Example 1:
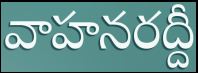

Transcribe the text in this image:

వాహనరద్దీ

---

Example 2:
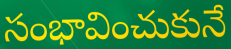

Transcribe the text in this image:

సంభావించుకునే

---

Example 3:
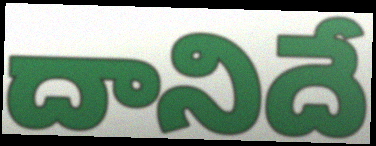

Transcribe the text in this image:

దానిదే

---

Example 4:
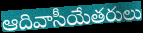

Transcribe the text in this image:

ఆదివాసీయేతరులు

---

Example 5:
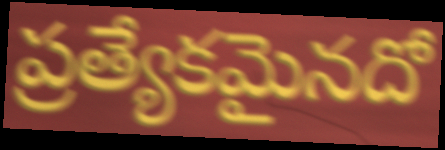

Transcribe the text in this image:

ప్రత్యేకమైనదో